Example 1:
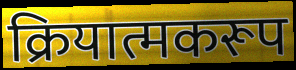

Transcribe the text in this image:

क्रियात्मकरूप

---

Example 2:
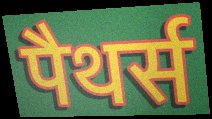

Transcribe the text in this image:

पैथर्स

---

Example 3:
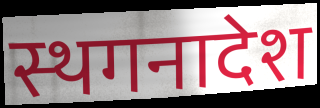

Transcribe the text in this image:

स्थगनादेश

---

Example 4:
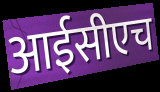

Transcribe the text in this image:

आईसीएच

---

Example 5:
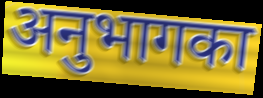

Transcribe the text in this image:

अनुभागका